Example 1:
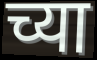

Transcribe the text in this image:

च्या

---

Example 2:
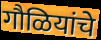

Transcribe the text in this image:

गौळियांचे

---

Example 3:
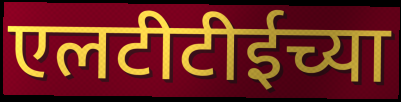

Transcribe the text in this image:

एलटीटीईच्या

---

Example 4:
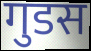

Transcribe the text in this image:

गुडस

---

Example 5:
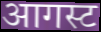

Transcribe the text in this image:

आगस्ट